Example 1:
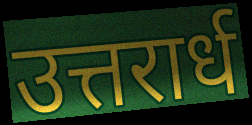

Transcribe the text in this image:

उत्तरार्ध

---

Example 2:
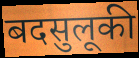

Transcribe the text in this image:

बदसुलूकी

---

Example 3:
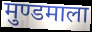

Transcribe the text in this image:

मुण्डमाला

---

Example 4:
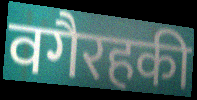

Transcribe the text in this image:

वगैरहकी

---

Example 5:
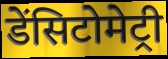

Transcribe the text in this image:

डेंसिटोमेट्री